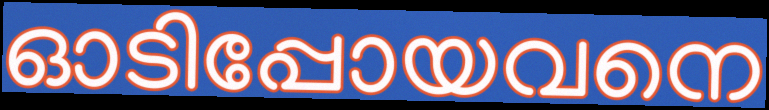
ഓടിപ്പോയവനെ